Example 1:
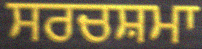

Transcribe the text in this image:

ਸਰਚਸ਼ਮਾ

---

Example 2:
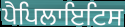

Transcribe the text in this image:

ਪੈਪਿਲਾਇਟਿਸ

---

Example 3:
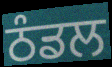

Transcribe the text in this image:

ਠੰਡਲ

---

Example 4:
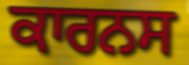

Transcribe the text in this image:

ਕਾਰਨਸ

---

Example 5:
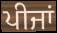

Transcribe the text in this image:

ਪੀਜਾਂ